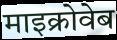
माइक्रोवेब